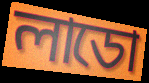
লাডো